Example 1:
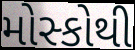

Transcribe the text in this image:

મોસ્કોથી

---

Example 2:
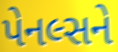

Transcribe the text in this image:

પેનલ્સને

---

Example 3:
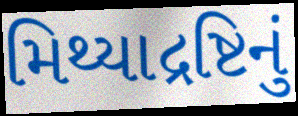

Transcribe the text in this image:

મિથ્યાદ્રષ્ટિનું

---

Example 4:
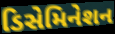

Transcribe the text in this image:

ડિસેમિનેશન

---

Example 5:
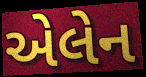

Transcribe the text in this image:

એલેન